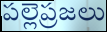
పల్లెప్రజలు